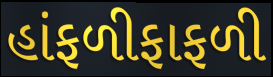
હાંફળીફાફળી